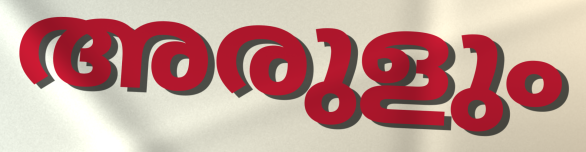
അരുളും